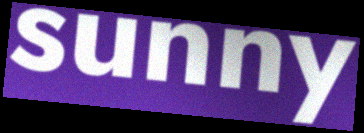
sunny